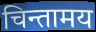
चिन्तामय